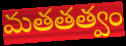
మతతత్వం